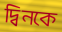
দ্বিনকে